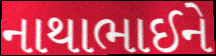
નાથાભાઈને